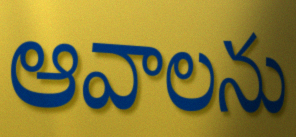
ఆవాలను